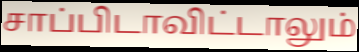
சாப்பிடாவிட்டாலும்